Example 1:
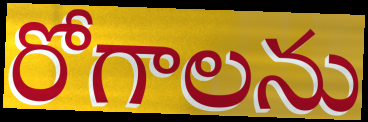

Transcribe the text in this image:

రోగాలను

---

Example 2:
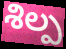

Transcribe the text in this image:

శిల్ప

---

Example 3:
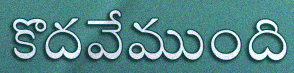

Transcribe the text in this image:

కొదవేముంది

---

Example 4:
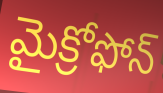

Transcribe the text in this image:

మైక్రోఫోన్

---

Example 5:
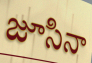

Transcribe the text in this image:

జూసినా